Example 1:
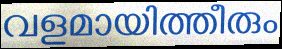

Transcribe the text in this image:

വളമായിത്തീരും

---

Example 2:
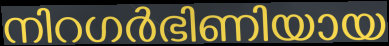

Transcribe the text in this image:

നിറഗർഭിണിയായ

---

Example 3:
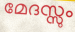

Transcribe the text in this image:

മേദസ്സും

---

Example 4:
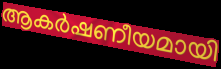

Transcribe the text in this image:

ആകർഷണീയമായി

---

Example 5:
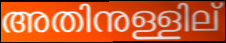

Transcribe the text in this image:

അതിനുള്ളില്